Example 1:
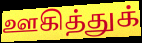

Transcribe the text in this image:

ஊகித்துக்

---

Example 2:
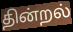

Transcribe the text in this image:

தின்றல்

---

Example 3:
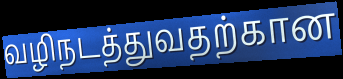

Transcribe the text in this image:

வழிநடத்துவதற்கான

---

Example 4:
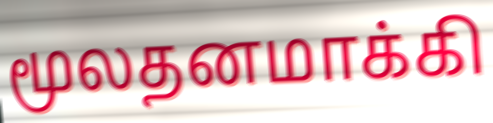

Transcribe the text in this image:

மூலதனமாக்கி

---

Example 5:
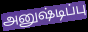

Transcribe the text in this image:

அனுஷ்டிப்பு